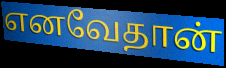
எனவேதான்